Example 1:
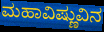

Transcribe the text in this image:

ಮಹಾವಿಷ್ಣುವಿನ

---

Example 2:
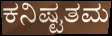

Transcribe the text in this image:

ಕನಿಷ್ಟತಮ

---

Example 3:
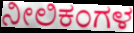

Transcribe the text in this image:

ನೀಲಿಕಂಗಳ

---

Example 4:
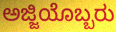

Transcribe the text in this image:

ಅಜ್ಜಿಯೊಬ್ಬರು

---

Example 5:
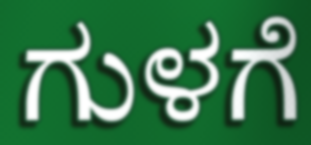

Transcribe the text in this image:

ಗುಳಗೆ